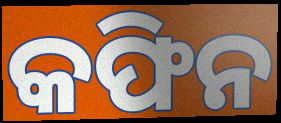
କଫିନ